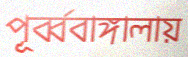
পূর্ব্ববাঙ্গালায়